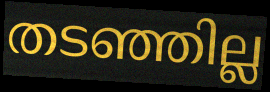
തടഞ്ഞില്ല